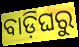
ବାଡ଼ିଘରୁ